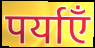
पर्याएँ